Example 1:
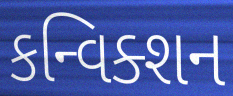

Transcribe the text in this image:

કન્વિક્શન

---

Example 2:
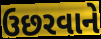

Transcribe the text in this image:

ઉછરવાને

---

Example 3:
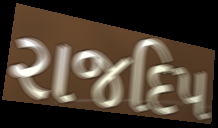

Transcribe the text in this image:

રાજદિપ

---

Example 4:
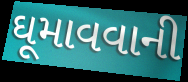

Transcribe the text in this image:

ઘૂમાવવાની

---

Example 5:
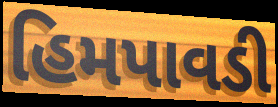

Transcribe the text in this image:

હિમપાવડી